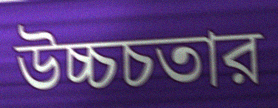
উচ্চচতার